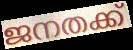
ജനതക്ക്